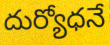
దుర్యోధనే